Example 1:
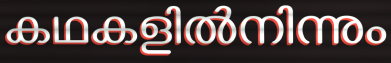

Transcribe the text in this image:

കഥകളിൽനിന്നും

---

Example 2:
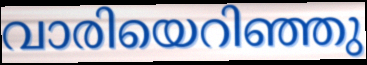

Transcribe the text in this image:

വാരിയെറിഞ്ഞു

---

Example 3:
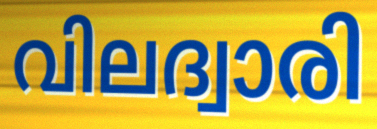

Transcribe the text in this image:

വിലദ്വാരി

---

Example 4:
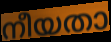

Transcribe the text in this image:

നീയതാ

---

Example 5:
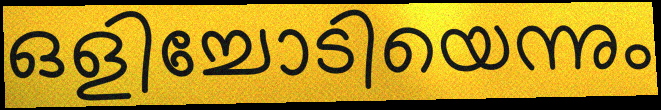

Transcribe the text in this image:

ഒളിച്ചോടിയെന്നും